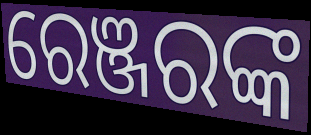
ରେଞ୍ଜରଙ୍କ